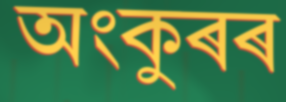
অংকুৰৰ